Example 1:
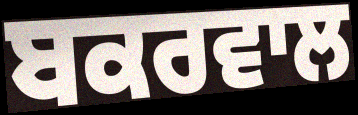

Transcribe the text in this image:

ਬਕਰਵਾਲ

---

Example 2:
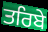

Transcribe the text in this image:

ਤਰਿਬੇ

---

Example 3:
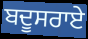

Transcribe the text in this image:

ਬਦੂਸਰਾਏ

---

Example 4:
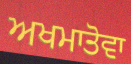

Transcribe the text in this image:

ਅਖਮਾਤੋਵਾ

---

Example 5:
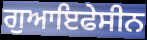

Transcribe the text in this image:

ਗੁਆਇਫੇਸੀਨ